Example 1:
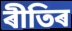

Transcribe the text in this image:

ৰীতিৰ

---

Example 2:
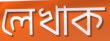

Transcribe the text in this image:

লেখাক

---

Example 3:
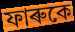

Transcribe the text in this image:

ফাৰুকে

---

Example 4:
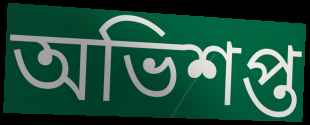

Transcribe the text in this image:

অভিশপ্ত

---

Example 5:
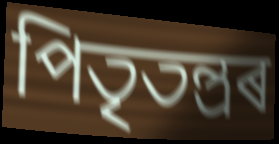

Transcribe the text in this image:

পিতৃতন্ত্ৰৰ